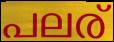
പലര്